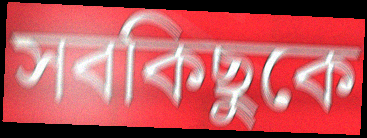
সবকিছুকে